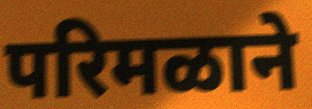
परिमळाने